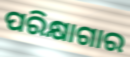
ପରିକ୍ଷାଗାର